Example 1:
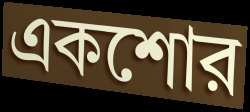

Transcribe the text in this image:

একশোর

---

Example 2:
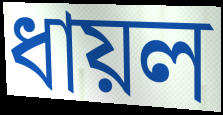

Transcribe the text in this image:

ধায়ল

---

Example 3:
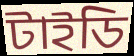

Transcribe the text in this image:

টাইডি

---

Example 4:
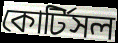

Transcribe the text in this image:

কোর্টিসল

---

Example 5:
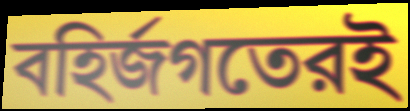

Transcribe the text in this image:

বহির্জগতেরই